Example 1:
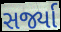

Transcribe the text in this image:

સર્જ્યા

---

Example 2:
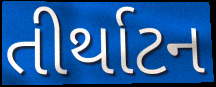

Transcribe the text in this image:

તીર્થાટન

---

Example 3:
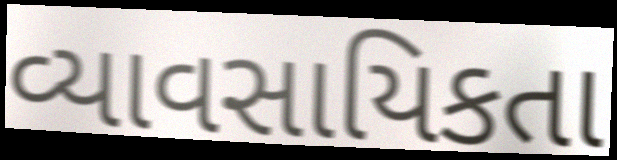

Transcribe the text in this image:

વ્યાવસાયિકતા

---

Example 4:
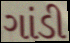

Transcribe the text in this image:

ગાંડી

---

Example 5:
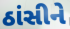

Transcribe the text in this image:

ઠાંસીને